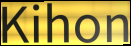
Kihon